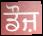
ਡੌਜ਼